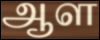
ஆள